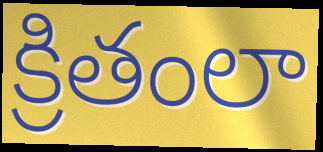
క్రితంలా